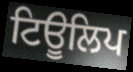
ਟਿਊਲਿਪ